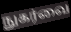
நுகர்வை